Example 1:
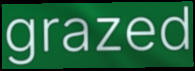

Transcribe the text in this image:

grazed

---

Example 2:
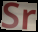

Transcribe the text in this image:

Sr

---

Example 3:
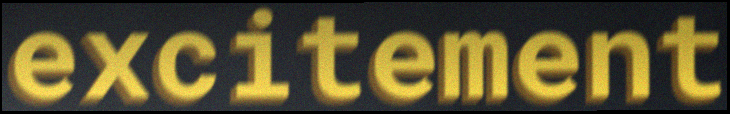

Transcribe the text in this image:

excitement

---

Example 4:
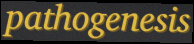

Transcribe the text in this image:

pathogenesis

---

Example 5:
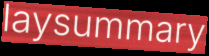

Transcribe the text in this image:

laysummary